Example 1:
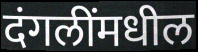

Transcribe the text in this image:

दंगलींमधील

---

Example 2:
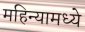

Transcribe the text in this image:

महिन्यामध्ये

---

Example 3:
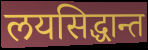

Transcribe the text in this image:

लयसिद्धान्त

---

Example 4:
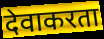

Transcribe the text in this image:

देवाकरता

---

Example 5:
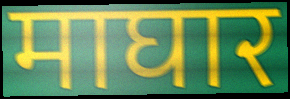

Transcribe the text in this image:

माघार